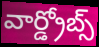
వార్డ్రోబ్స్